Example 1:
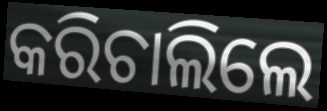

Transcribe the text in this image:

କରିଚାଲିଲେ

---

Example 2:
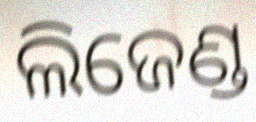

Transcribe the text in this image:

ଲିଜେଣ୍ଡ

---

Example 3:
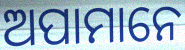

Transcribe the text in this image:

ଅପାମାନେ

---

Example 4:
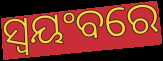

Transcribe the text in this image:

ସ୍ଵୟଂବରେ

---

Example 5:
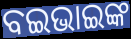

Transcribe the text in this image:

ବଇଭାଇଙ୍କ